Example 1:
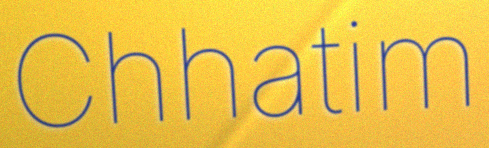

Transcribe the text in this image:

Chhatim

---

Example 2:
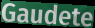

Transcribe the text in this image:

Gaudete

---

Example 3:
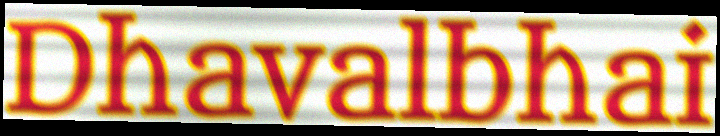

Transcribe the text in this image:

Dhavalbhai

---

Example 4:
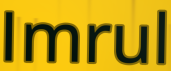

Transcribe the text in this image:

Imrul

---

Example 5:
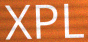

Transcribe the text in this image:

XPL